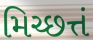
મિચ્છત્તં